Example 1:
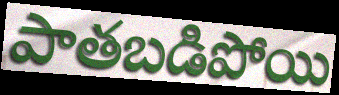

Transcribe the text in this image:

పాతబడిపోయి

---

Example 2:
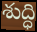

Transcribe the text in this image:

శుద్ధి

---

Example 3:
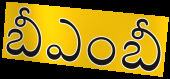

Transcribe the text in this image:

బీఎంబీ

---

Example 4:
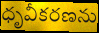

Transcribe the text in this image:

ధృవీకరణను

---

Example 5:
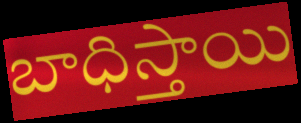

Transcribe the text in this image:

బాధిస్తాయి